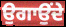
ਉਗਾਉਂਦੇ